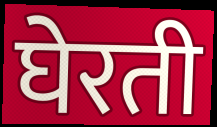
घेरती